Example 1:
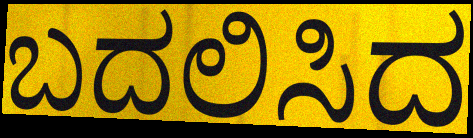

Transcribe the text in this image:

ಬದಲಿಸಿದ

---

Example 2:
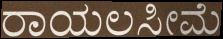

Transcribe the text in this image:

ರಾಯಲಸೀಮೆ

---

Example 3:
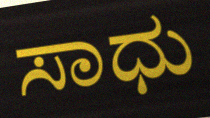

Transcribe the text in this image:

ಸಾಧು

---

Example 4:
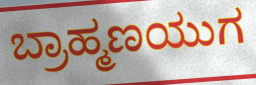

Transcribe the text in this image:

ಬ್ರಾಹ್ಮಣಯುಗ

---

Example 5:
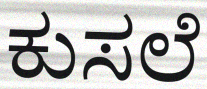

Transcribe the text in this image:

ಕುಸಲೆ